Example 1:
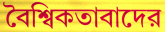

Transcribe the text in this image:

বৈশ্বিকতাবাদের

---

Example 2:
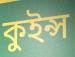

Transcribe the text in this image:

কুইন্স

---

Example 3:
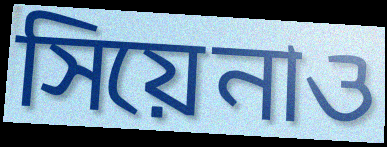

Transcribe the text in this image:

সিয়েনাও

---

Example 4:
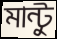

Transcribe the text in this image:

মান্টু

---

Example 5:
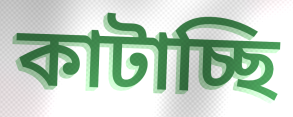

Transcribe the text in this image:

কাটাচ্ছি